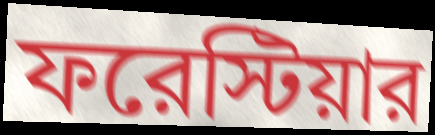
ফরেস্টিয়ার